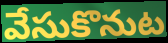
వేసుకొనుట